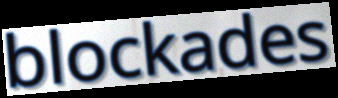
blockades